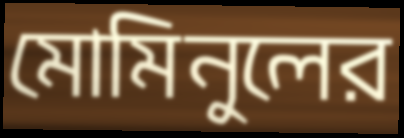
মোমিনুলের